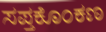
ಸಪ್ತಕೊಂಕಣ